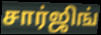
சார்ஜிங்